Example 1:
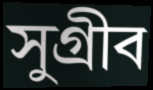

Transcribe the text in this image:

সুগ্রীব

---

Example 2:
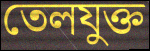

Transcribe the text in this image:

তেলযুক্ত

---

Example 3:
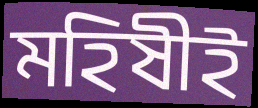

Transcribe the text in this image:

মহিষীই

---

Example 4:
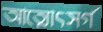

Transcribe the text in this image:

আত্মোৎসর্গ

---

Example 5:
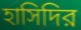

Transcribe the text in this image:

হাসিদির